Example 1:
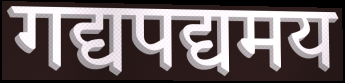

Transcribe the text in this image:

गद्यपद्यमय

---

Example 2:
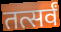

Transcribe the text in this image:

तत्सर्वं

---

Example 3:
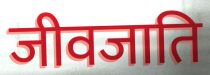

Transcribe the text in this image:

जीवजाति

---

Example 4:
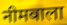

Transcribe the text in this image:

नीमवाला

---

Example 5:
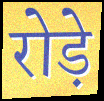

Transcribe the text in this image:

रोड़े